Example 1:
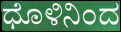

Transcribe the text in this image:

ಧೊಳಿನಿಂದ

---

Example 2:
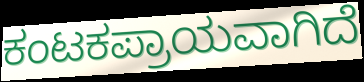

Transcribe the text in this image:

ಕಂಟಕಪ್ರಾಯವಾಗಿದೆ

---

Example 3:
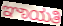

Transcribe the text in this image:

ಞಾಯತಿ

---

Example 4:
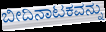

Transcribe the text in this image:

ಬೀದಿನಾಟಕವನ್ನು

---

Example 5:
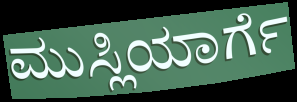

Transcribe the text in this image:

ಮುಸ್ಲಿಯಾರ್ಗೆ